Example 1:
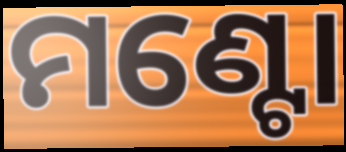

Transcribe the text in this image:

ମଣ୍ଟୋ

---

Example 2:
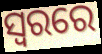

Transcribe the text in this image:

ସ୍ୱରରେ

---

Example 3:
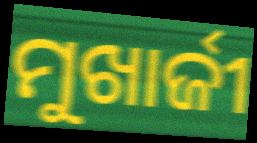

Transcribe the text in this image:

ମୁଖାର୍ଜୀ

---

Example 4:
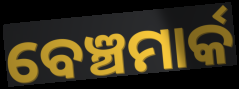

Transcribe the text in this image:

ବେଞ୍ଚମାର୍କ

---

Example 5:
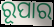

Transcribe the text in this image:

ରୂପାର